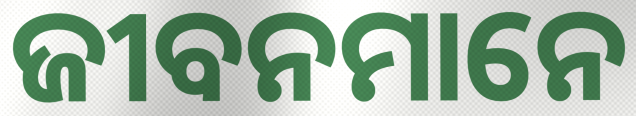
ଜୀବନମାନେ